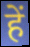
हें